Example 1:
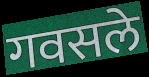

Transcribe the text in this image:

गवसले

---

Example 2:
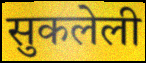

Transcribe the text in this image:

सुकलेली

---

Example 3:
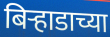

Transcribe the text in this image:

बिऱ्हाडाच्या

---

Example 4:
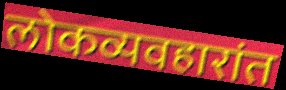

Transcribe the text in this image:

लोकव्यवहारांत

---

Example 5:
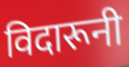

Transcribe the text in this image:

विदारूनी